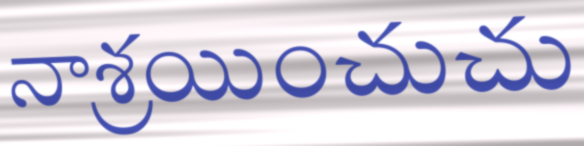
నాశ్రయించుచు